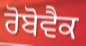
ਰੋਬੋਵੈਕ